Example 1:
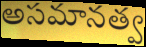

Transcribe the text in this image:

అసమానత్వ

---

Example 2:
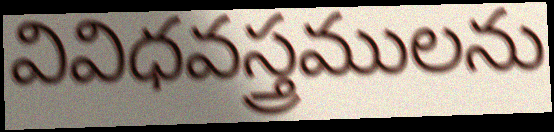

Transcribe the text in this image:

వివిధవస్త్రములను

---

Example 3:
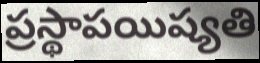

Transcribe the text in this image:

ప్రస్థాపయిష్యతి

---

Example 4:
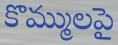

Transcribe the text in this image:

కొమ్ములపై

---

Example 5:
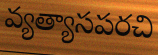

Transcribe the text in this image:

వ్యత్యాసపరచి